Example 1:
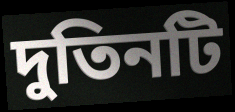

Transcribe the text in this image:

দুতিনটি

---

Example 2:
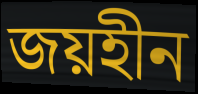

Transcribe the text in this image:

জয়হীন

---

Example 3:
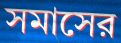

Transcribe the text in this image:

সমাসের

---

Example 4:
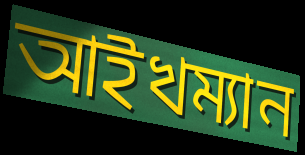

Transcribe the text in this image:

আইখম্যান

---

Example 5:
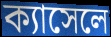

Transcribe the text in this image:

ক্যাসেলে